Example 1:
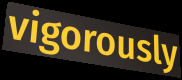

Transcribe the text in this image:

vigorously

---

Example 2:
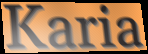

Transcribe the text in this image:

Karia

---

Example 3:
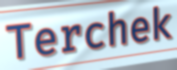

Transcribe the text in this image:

Terchek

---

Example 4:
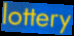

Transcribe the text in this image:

lottery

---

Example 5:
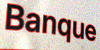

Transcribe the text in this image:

Banque